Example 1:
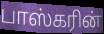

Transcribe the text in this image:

பாஸ்கரின்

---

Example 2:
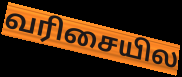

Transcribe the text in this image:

வரிசையில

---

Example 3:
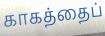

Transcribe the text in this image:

காகத்தைப்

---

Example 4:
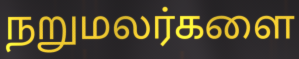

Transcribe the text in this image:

நறுமலர்களை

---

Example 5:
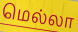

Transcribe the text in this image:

மெல்லா